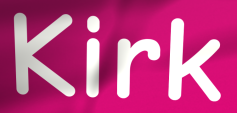
Kirk